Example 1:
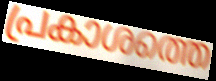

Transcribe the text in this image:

പ്രകാശത്തെ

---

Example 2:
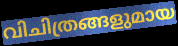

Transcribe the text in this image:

വിചിത്രങ്ങളുമായ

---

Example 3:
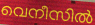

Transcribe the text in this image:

വെനീസിൽ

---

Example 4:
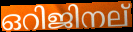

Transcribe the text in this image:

ഒറിജിനല്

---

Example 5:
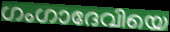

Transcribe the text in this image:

ഗംഗാദേവിയെ